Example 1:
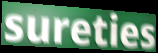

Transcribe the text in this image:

sureties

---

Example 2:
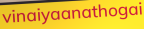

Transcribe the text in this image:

vinaiyaanathogai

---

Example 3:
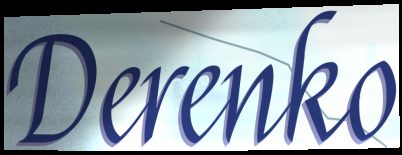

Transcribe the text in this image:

Derenko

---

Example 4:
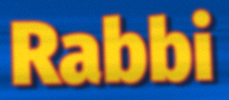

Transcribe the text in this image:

Rabbi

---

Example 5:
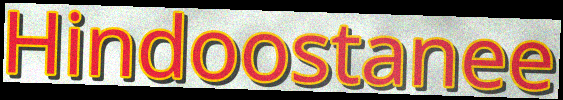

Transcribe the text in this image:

Hindoostanee